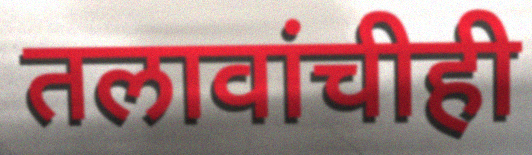
तलावांचीही